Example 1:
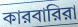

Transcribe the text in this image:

কারবারিরা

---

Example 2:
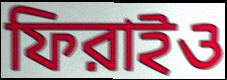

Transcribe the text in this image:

ফিরাইও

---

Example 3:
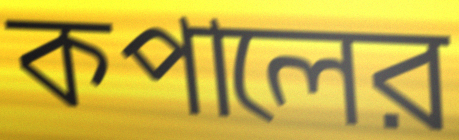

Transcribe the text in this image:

কপালের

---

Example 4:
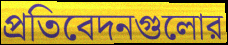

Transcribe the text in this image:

প্রতিবেদনগুলোর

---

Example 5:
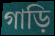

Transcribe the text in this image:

গাড়ি